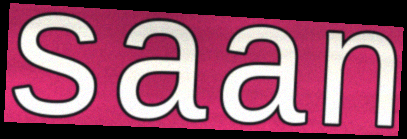
saan